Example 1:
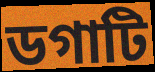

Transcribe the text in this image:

ডগাটি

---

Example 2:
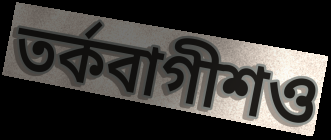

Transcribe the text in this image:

তর্কবাগীশও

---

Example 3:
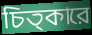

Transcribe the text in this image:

চিত্কারে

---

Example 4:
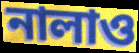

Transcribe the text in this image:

নালাও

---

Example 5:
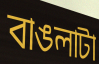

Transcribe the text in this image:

বাঙলাটা